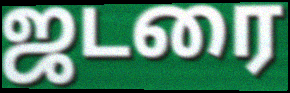
ஜடரை